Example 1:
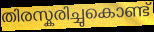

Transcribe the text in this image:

തിരസ്കരിച്ചുകൊണ്ട്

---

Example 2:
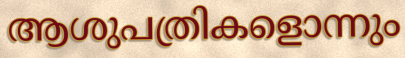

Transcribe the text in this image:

ആശുപത്രികളൊന്നും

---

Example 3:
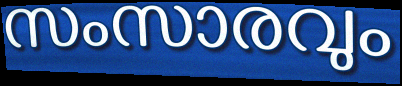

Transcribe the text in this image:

സംസാരവും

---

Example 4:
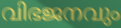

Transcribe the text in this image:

വിഭജനവും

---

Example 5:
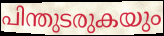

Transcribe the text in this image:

പിന്തുടരുകയും